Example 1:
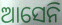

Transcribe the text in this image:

ଆସେନି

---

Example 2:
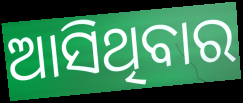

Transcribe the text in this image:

ଆସିଥିବାର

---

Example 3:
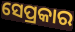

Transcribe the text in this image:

ସେପ୍ରକାର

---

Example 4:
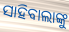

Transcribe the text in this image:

ସାହିବାଲାଙ୍କୁ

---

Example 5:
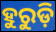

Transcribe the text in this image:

ହୁରୁଡ଼ି